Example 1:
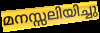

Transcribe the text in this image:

മനസ്സലിയിച്ചു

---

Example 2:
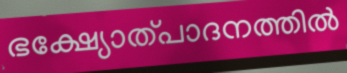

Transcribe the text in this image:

ഭക്ഷ്യോത്പാദനത്തിൽ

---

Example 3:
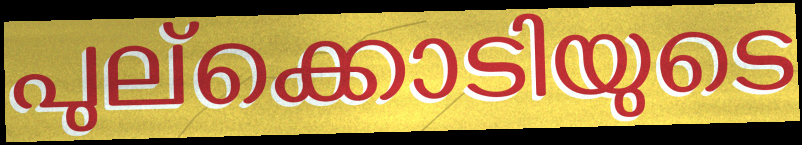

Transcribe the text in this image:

പുല്ക്കൊടിയുടെ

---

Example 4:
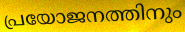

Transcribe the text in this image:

പ്രയോജനത്തിനും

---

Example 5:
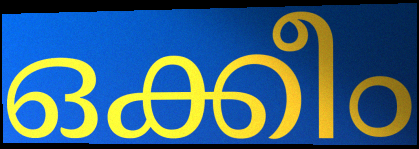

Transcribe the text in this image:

ഒക്കീം